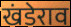
खंडेराव